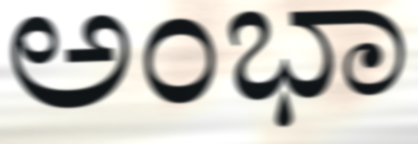
ಅಂಭಾ